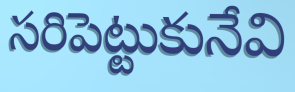
సరిపెట్టుకునేవి